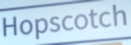
Hopscotch